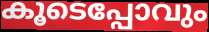
കൂടെപ്പോവും